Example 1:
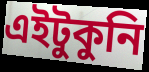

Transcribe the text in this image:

এইটুকুনি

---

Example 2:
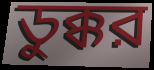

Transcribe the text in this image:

ডুক্কর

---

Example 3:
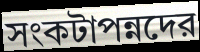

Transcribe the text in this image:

সংকটাপন্নদের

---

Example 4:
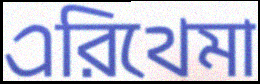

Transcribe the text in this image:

এরিথেমা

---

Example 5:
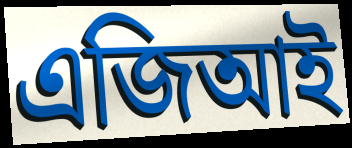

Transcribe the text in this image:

এজিআই